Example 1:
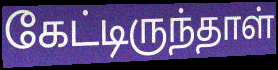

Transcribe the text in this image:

கேட்டிருந்தாள்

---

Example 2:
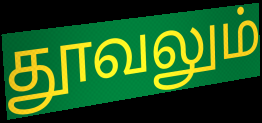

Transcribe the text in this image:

தூவலும்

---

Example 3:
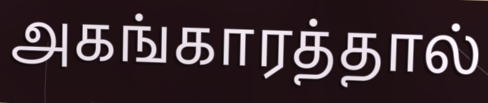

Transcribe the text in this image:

அகங்காரத்தால்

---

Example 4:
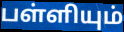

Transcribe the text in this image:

பள்ளியும்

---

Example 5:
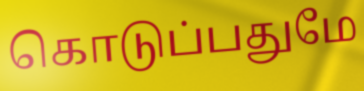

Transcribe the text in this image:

கொடுப்பதுமே